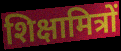
शिक्षामित्रों